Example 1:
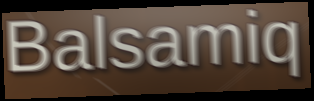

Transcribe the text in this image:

Balsamiq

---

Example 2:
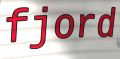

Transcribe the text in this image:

fjord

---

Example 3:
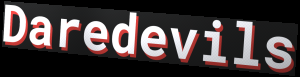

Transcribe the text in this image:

Daredevils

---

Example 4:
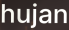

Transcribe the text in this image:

hujan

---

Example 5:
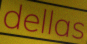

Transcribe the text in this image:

dellas